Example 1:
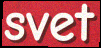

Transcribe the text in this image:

svet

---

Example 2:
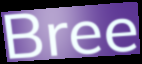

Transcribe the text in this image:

Bree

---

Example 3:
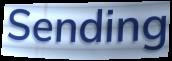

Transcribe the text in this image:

Sending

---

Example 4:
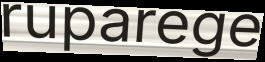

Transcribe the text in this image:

ruparege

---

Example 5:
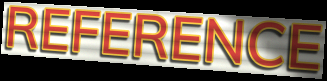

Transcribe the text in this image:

REFERENCE